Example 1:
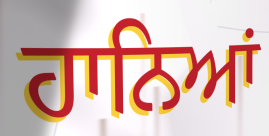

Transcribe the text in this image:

ਹਾਨਿਆਂ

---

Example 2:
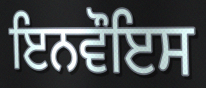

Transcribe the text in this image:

ਇਨਵੌਇਸ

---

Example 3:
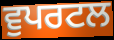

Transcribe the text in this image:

ਵੁਪਰਟਲ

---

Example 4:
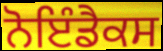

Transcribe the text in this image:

ਨੋਇੰਡੈਕਸ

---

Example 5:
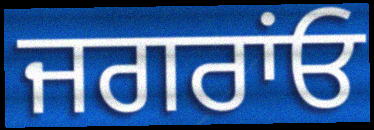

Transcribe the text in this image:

ਜਗਰਾਂਓ